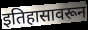
इतिहासावरून